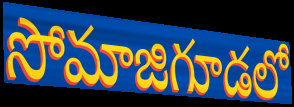
సోమాజిగూడలో